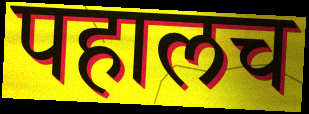
पहालच